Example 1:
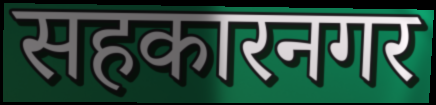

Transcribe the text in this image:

सहकारनगर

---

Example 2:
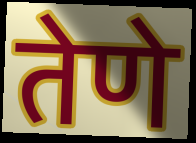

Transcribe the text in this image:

तेणे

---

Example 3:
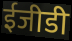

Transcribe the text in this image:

ईजीडी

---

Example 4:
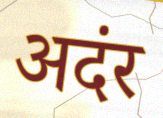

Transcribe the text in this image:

अदंर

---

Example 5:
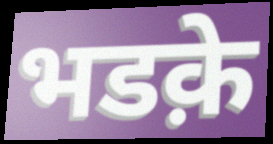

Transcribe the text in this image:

भडक़े